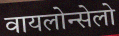
वायलोन्सेलो